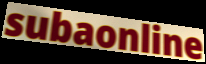
subaonline